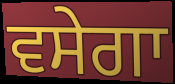
ਵਸੇਗਾ